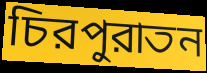
চিরপুরাতন